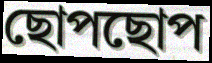
ছোপছোপ